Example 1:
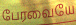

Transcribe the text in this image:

பேரவையே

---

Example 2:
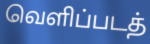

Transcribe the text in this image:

வெளிப்படத்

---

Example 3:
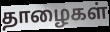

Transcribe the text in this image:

தாழைகள்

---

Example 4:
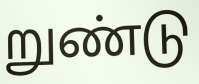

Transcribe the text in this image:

றுண்டு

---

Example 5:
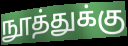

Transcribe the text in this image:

நூத்துக்கு